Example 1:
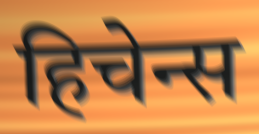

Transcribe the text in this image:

हिचेन्स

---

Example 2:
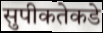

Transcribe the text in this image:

सुपीकतेकडे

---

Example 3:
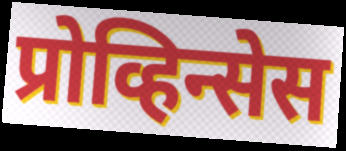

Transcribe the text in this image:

प्रोव्हिन्सेस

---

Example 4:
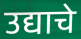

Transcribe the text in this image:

उद्याचे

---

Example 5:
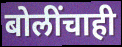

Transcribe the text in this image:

बोलींचाही